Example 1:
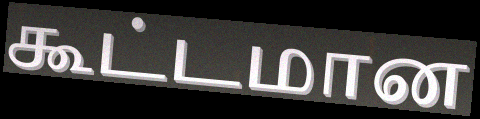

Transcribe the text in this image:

கூட்டமான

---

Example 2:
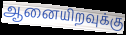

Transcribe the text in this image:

ஆனையிறவுக்கு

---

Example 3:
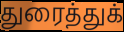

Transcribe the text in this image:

துரைத்துக்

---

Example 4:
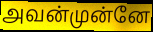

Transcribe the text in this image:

அவன்முன்னே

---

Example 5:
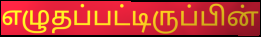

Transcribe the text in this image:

எழுதப்பட்டிருப்பின்